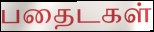
பதைடகள்